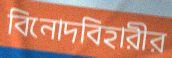
বিনোদবিহারীর